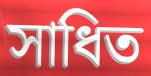
সাধিত